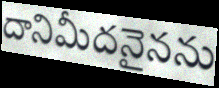
దానిమీదనైనను